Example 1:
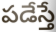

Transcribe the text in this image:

పడేస్తే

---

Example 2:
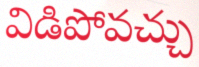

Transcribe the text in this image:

విడిపోవచ్చు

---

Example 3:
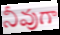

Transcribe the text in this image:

నీవుగా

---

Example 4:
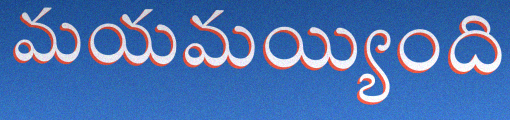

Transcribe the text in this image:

మయమయ్యింది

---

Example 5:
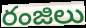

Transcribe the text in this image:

రంజిలు